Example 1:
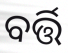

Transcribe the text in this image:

ବର୍ତ୍ତି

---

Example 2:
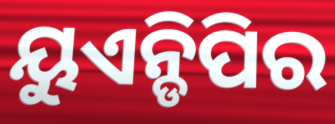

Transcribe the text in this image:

ୟୁଏନ୍ଡିପିର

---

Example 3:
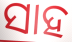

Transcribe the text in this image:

ସାହ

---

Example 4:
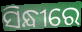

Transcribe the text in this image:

ସିନ୍ଧୀରେ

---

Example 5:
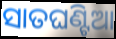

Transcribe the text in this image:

ସାତଘଣ୍ଟିଆ